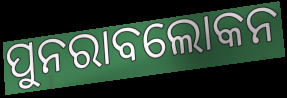
ପୁନରାବଲୋକନ